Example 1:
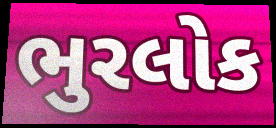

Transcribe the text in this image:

ભુરલોક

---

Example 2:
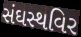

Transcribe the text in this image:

સંઘસ્થવિર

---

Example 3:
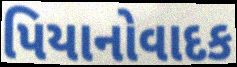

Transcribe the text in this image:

પિયાનોવાદક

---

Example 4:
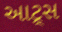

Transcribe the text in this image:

આટ્ર્સ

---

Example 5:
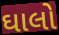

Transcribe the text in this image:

ઘાલો